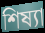
শিষ্যা